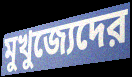
মুখুজ্যেদের